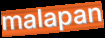
malapan